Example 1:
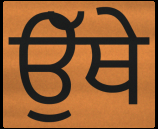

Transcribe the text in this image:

ਉੁੱਥੇ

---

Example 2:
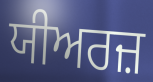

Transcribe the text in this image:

ਯੀਅਰਜ਼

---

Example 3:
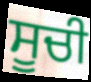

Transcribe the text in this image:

ਸੂਚੀ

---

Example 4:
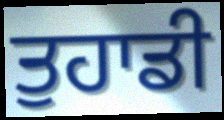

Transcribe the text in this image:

ਤੁਹਾਡੀ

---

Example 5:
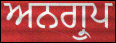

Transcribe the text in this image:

ਅਨਗ੍ਰੁਪ